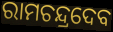
ରାମଚନ୍ଦ୍ରଦେବ